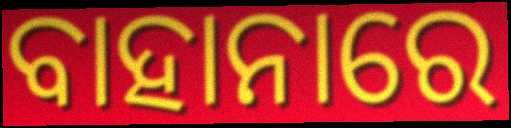
ବାହାନାରେ